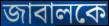
জাবালকে